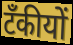
टँकीयों